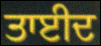
ਤਾਈਦ